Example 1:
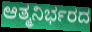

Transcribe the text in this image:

ಆತ್ಮನಿರ್ಭರದ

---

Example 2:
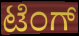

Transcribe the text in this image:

ಟೆಂಗ್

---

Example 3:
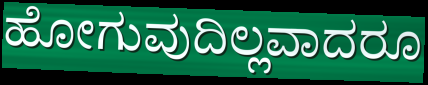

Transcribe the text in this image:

ಹೋಗುವುದಿಲ್ಲವಾದರೂ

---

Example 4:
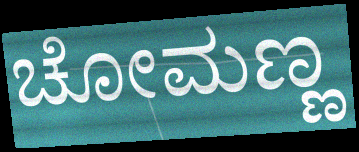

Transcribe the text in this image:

ಚೋಮಣ್ಣ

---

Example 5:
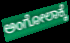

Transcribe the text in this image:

ಅಂಗೋಲಾಕ್ಕೆ